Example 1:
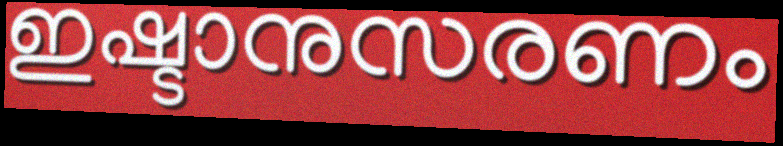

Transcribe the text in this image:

ഇഷ്ടാനുസരണം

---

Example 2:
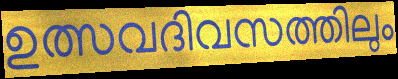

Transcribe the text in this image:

ഉത്സവദിവസത്തിലും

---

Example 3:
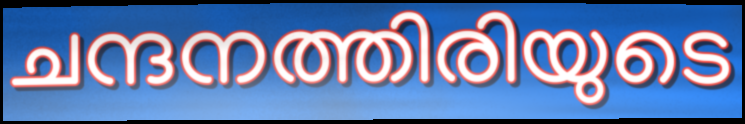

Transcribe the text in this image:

ചന്ദനത്തിരിയുടെ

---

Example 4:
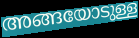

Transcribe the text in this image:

അങ്ങയോടുള്ള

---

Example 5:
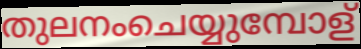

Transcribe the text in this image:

തുലനംചെയ്യുമ്പോള്